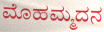
ಮೊಹಮ್ಮದನ